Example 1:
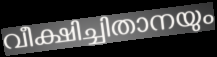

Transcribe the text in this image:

വീക്ഷിച്ചിതാനയും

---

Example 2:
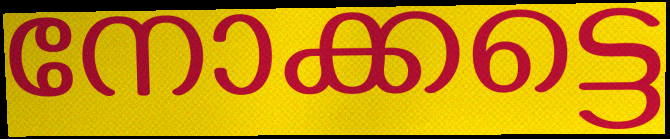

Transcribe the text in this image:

നോക്കട്ടെ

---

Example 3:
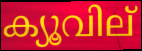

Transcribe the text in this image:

ക്യൂവില്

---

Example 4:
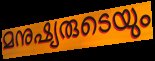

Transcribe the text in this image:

മനുഷ്യരുടെയും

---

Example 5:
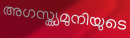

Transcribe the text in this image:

അഗസ്ത്യമുനിയുടെ